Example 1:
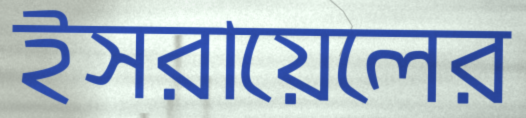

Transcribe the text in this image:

ইসরায়েলের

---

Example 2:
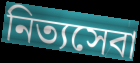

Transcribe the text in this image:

নিত্যসেবা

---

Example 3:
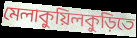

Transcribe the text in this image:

মেলাকুয়িলকুড়িতে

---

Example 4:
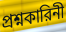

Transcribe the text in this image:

প্রশ্নকারিনী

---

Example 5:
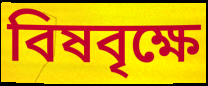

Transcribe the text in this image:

বিষবৃক্ষে